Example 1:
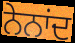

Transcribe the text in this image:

ਨੇਨਾਂਦ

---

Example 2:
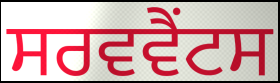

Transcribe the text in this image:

ਸਰਵਵੈਂਟਸ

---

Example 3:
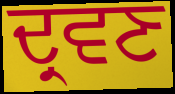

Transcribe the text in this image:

ਦ੍ਰਵਣ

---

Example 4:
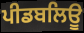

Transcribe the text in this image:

ਪੀਡਬਲਿਊ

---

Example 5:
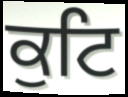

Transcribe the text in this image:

ਕੁਟਿ